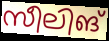
സീലിങ്